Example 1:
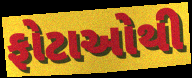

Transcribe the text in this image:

ફોટાઓથી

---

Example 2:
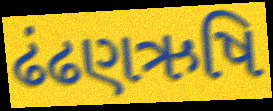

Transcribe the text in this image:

ઢંઢણઋષિ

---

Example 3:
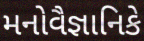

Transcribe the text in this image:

મનોવૈજ્ઞાનિકે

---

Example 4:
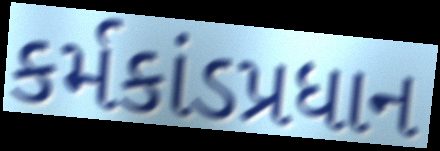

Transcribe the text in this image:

કર્મકાંડપ્રધાન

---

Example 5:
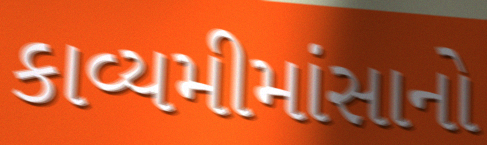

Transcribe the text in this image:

કાવ્યમીમાંસાનો